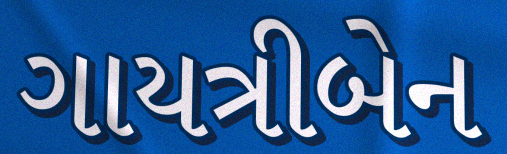
ગાયત્રીબેન